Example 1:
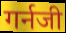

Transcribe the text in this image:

गर्नजी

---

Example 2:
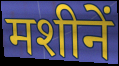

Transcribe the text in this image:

मशीनें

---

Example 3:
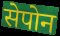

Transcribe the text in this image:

सेपोन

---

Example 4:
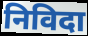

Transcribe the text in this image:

निविदा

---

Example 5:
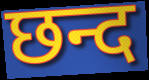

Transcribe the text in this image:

छन्‍द